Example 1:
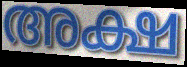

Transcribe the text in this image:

അക്ഷ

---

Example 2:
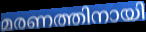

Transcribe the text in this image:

മരണത്തിനായി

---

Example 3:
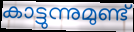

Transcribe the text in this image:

കാട്ടുന്നുമുണ്ട്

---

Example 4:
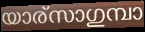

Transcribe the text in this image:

യാര്സാഗുമ്പാ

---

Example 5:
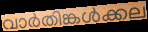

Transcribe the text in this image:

വാർതിങ്കൾക്കല